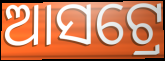
ଆସଟ୍ରେ